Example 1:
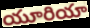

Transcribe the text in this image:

యూరియా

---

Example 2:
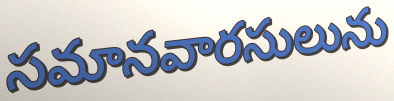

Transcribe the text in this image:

సమానవారసులును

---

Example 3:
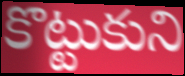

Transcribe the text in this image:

కొట్టుకుని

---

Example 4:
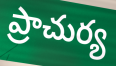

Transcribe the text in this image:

ప్రాచుర్య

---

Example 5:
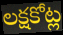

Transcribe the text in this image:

లక్షకోట్ల